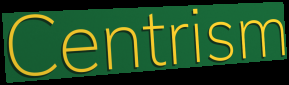
Centrism